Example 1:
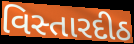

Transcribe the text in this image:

વિસ્તારદીઠ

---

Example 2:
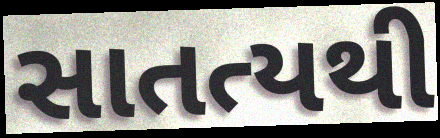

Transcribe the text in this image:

સાતત્યથી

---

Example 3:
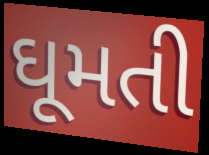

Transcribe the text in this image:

ઘૂમતી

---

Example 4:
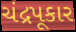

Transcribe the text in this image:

ચંદ્રપૂકાર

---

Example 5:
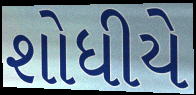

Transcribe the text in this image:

શોધીયે